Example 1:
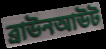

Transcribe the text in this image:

ব্রাউনআউট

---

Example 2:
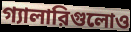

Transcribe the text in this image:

গ্যালারিগুলোও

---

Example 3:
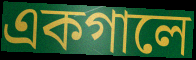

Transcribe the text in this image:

একগালে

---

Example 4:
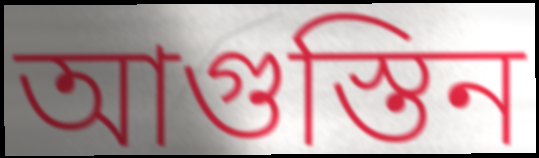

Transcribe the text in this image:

আগুস্তিন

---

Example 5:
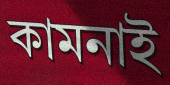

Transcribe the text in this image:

কামনাই